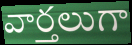
వార్తలుగా